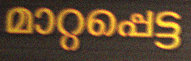
മാറ്റപ്പെട്ട